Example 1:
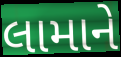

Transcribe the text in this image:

લામાને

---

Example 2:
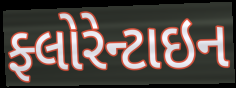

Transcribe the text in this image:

ફ્લોરેન્ટાઇન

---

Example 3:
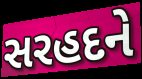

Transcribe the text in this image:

સરહદને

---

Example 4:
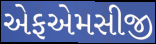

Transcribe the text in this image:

એફએમસીજી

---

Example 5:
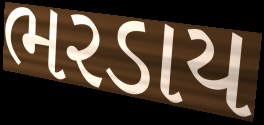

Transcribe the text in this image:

ભરડાય